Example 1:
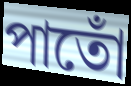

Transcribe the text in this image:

পাতোঁ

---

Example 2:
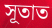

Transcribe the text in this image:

সূতাত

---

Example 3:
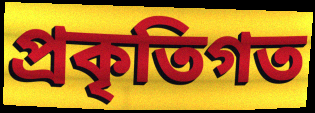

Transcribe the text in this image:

প্ৰকৃতিগত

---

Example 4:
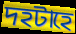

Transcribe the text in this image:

দহটাহে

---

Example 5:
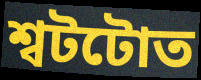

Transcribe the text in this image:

শ্বটটোত